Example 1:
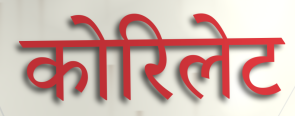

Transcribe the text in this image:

कोरिलेट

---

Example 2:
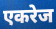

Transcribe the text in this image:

एकरेज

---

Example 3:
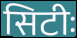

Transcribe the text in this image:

सिटीः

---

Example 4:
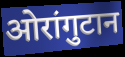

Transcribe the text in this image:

ओरांगुटान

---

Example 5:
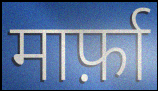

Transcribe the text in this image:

मार्फ़ा